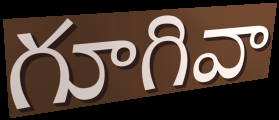
గూగివా